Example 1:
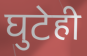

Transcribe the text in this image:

घुटेही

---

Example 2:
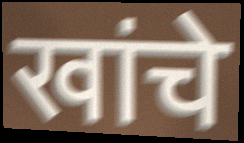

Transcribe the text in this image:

खांचे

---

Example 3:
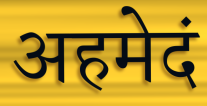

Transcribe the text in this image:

अहमेदं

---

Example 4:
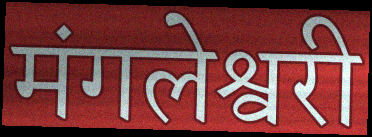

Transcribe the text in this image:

मंगलेश्वरी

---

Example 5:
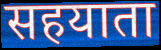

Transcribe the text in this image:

सहयाता